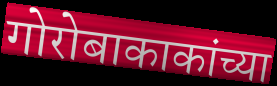
गोरोबाकाकांच्या